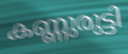
കണ്ണുരുട്ടി